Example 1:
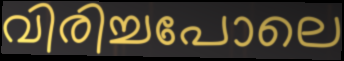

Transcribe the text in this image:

വിരിച്ചപോലെ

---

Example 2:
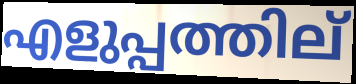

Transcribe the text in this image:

എളുപ്പത്തില്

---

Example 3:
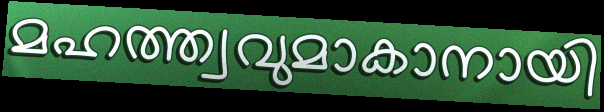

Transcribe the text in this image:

മഹത്ത്വവുമാകാനായി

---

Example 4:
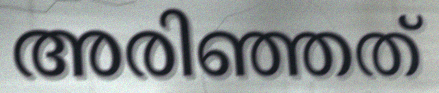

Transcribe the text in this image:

അരിഞ്ഞത്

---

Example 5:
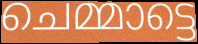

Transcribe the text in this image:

ചെമ്മാട്ടെ